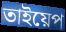
তাইয়েপ